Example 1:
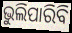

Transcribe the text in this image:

ଭୁଲିପାରିବି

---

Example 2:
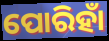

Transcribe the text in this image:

ପୋରିହାଁ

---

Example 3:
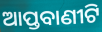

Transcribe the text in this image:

ଆପ୍ତବାଣୀଟି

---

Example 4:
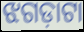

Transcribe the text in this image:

ଝଗଡ଼ାଟା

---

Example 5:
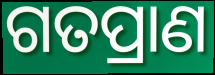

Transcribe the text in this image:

ଗତପ୍ରାଣ